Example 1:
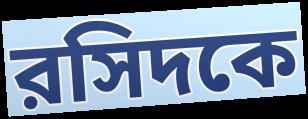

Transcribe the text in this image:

রসিদকে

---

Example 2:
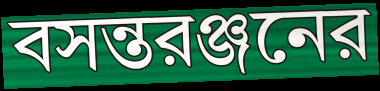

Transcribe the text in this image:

বসন্তরঞ্জনের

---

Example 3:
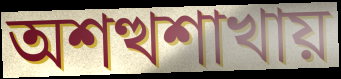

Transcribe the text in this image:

অশত্থশাখায়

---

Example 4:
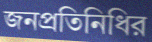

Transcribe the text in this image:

জনপ্রতিনিধির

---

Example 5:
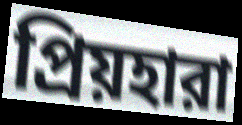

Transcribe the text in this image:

প্রিয়হারা